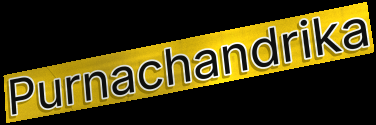
Purnachandrika